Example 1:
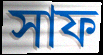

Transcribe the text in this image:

সাফ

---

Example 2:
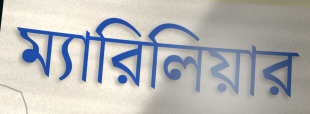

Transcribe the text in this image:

ম্যারিলিয়ার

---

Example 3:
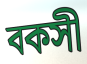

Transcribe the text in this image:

বকসী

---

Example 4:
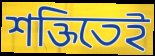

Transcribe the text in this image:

শক্তিতেই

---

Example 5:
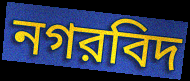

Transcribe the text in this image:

নগরবিদ